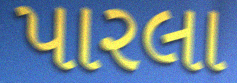
પારલા